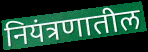
नियंत्रणातील